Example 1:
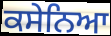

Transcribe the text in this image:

ਕਸੇਨਿਆ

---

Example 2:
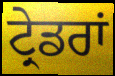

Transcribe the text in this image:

ਟ੍ਰੇਡਰਾਂ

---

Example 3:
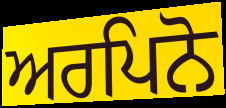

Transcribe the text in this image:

ਅਰਪਿਨੋ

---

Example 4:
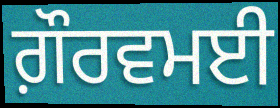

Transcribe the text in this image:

ਗ਼ੌਰਵਮਈ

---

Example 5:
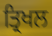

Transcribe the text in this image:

ਤ੍ਰਿਖਲ